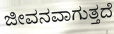
ಜೀವನವಾಗುತ್ತದೆ